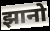
झानो